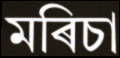
মৰিচা